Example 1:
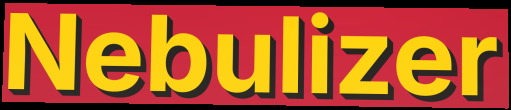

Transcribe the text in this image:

Nebulizer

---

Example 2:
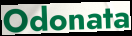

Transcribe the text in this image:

Odonata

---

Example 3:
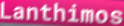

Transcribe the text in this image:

Lanthimos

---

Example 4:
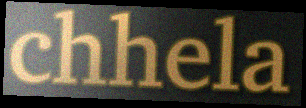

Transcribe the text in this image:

chhela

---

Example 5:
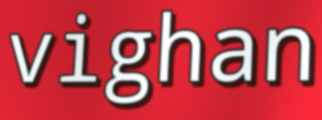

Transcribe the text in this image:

vighan